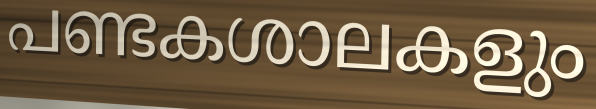
പണ്ടകശാലകളും